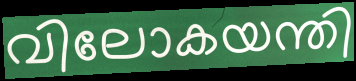
വിലോകയന്തി